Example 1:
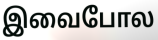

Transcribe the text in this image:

இவைபோல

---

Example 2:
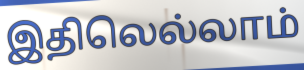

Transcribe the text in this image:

இதிலெல்லாம்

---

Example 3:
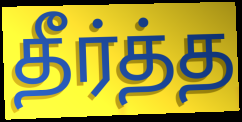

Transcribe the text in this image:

தீர்த்த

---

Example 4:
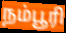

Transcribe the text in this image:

நம்பூரி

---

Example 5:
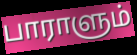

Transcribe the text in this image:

பாராளும்